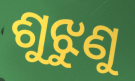
ଶୁଝୁଣୁ